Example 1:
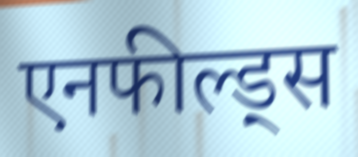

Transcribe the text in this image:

एनफील्ड्स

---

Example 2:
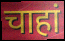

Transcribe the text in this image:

चाहां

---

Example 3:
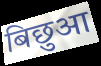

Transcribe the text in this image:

बिछुआ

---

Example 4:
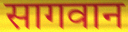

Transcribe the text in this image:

सागवान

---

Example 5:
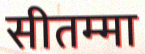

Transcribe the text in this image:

सीतम्मा